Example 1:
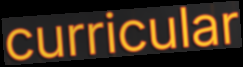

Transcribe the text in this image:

curricular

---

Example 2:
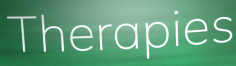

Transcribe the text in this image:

Therapies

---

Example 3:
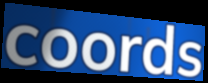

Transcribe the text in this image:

coords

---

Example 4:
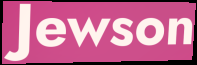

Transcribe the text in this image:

Jewson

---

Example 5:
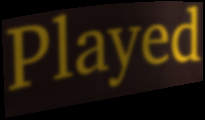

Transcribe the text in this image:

Played